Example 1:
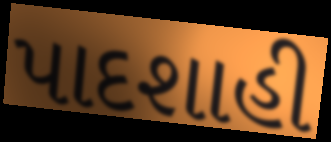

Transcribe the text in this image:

પાદશાહી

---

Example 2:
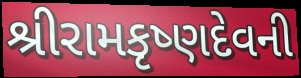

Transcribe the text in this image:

શ્રીરામકૃષ્ણદેવની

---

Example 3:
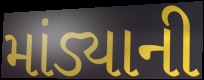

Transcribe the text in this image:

માંડ્યાની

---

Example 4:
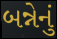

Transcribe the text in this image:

બન્નેનું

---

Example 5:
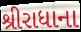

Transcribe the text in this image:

શ્રીરાધાના